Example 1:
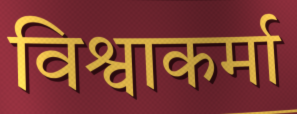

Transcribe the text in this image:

विश्वाकर्मा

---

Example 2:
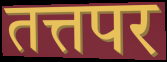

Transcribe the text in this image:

तत्तपर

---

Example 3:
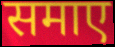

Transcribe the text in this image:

समाए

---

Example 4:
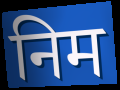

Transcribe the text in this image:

निम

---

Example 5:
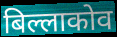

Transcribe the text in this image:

बिल्लाकोव